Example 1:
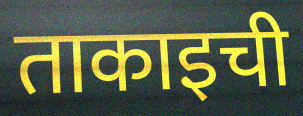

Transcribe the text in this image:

ताकाइची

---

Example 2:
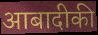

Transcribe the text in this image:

आबादीकी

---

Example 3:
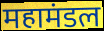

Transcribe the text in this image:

महामंडल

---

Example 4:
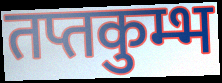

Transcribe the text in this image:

तप्तकुम्भ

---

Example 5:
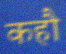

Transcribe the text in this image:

कहौ